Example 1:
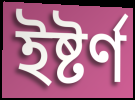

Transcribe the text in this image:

ইষ্টৰ্ণ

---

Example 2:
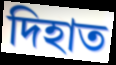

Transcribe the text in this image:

দিহাত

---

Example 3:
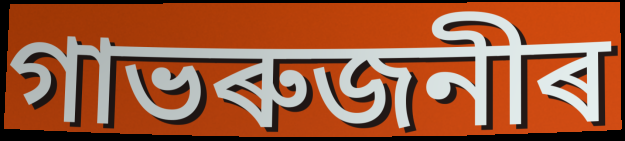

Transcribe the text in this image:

গাভৰুজনীৰ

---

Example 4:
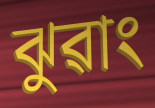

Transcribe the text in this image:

ঝুৱাং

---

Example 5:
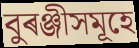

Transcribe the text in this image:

বুৰঞ্জীসমূহে